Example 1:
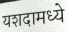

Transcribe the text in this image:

यशदामध्ये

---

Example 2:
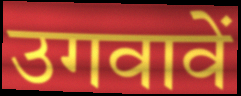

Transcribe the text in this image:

उगवावें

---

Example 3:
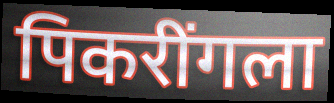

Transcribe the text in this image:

पिकरींगला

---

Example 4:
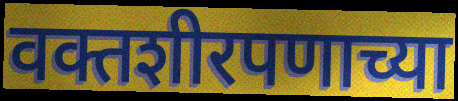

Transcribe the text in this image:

वक्तशीरपणाच्या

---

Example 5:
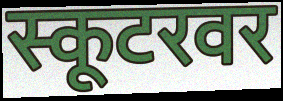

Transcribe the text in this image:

स्कूटरवर